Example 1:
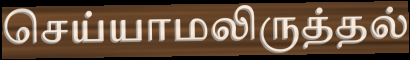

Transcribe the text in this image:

செய்யாமலிருத்தல்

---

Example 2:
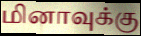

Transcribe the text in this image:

மினாவுக்கு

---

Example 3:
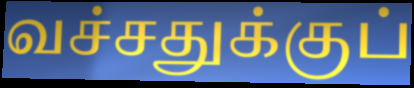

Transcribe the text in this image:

வச்சதுக்குப்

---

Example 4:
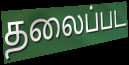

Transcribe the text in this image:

தலைப்பட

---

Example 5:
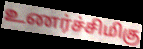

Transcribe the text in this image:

உணர்ச்சிமிகு